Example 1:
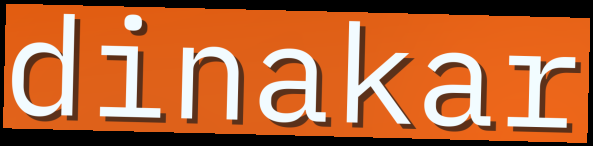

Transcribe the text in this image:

dinakar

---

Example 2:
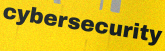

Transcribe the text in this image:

cybersecurity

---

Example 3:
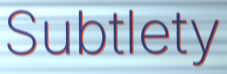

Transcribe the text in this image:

Subtlety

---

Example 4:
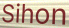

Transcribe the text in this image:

Sihon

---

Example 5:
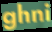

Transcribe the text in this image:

ghni